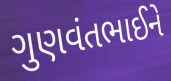
ગુણવંતભાઈને